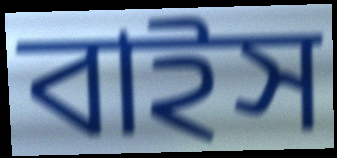
বাইস